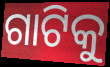
ଗାଟିକୁ